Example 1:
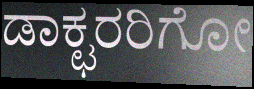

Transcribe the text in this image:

ಡಾಕ್ಟರರಿಗೋ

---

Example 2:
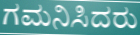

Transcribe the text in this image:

ಗಮನಿಸಿದರು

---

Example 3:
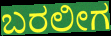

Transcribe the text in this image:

ಬರಲೀಗ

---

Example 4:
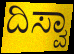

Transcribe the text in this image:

ದಿಸ್ವಾ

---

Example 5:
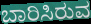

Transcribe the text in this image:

ಬಾರಿಸಿರುವ